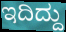
ಇದಿದ್ದು